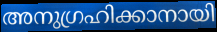
അനുഗ്രഹിക്കാനായി